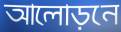
আলোড়নে